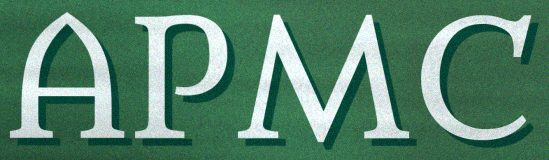
APMC